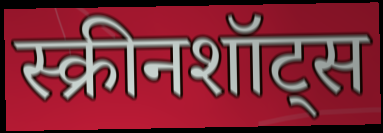
स्क्रीनशॉट्स